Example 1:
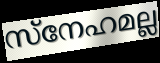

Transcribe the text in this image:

സ്നേഹമല്ല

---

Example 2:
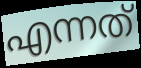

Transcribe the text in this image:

എന്നത്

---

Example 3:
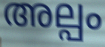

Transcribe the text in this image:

അല്പം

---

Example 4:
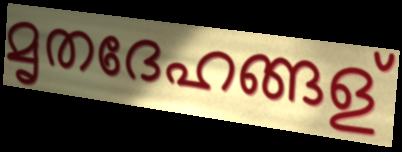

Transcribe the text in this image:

മൃതദേഹങ്ങള്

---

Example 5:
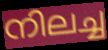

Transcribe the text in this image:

നിലച്ച